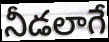
నీడలాగే